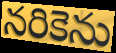
నరికెను